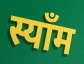
स्याँम